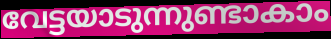
വേട്ടയാടുന്നുണ്ടാകാം